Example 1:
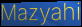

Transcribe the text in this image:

Mazyahi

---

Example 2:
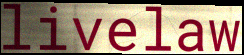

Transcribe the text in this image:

livelaw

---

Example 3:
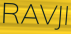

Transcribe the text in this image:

RAVJI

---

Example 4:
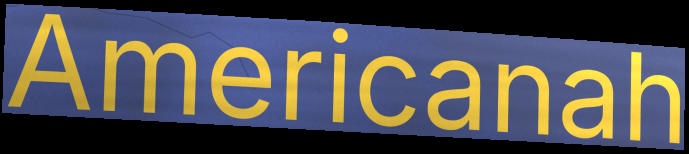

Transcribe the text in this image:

Americanah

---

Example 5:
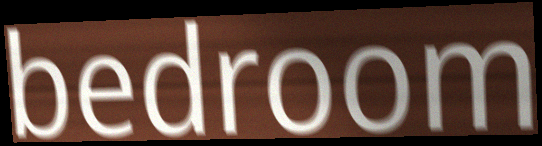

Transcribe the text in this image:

bedroom